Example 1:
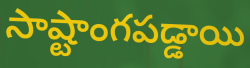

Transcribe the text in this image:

సాష్టాంగపడ్డాయి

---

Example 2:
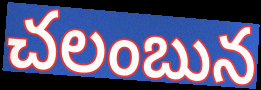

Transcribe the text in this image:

చలంబున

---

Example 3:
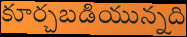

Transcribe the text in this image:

కూర్చబడియున్నది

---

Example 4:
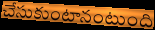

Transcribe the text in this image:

చేసుకుంటానంటుంది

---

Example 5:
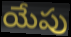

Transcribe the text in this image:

యేపు